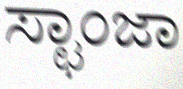
ಸ್ಟಾಂಜಾ